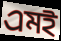
এমই